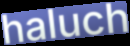
haluch